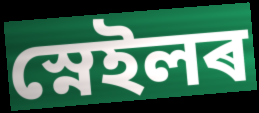
স্নেইলৰ